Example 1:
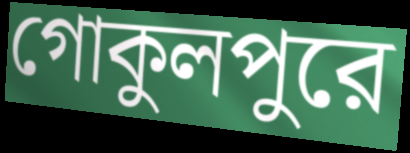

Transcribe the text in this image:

গোকুলপুরে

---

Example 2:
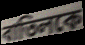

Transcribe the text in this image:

বাতিলকে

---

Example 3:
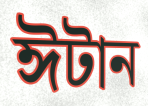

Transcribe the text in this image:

ঈটান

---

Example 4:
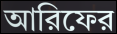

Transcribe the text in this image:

আরিফের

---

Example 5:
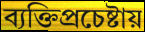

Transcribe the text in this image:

ব্যক্তিপ্রচেষ্টায়